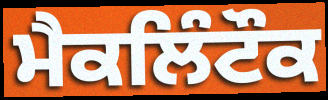
ਮੈਕਲਿੰਟੌਕ